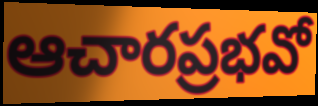
ఆచారప్రభవో